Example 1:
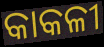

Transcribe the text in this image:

କାକଳୀ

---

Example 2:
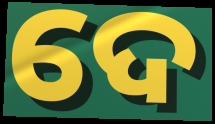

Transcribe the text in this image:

ଦେ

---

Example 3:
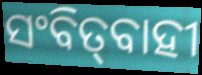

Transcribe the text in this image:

ସଂବିତ୍‌ବାହୀ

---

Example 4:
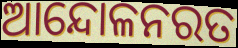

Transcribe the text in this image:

ଆନ୍ଦୋଳନରତ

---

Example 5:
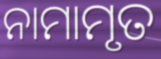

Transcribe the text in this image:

ନାମାମୃତ